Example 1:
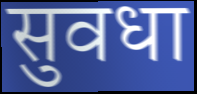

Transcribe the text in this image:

सुवधा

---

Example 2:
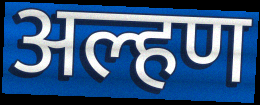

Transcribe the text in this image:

अल्हण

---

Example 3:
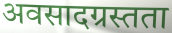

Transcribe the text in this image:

अवसादग्रस्तता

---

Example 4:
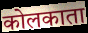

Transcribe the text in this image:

कोलकाता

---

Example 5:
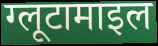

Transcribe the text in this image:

ग्लूटामाइल